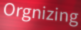
Orgnizing